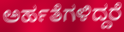
ಅರ್ಹತೆಗಳಿದ್ದರೆ